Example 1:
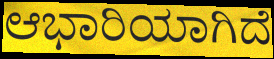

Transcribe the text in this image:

ಆಭಾರಿಯಾಗಿದೆ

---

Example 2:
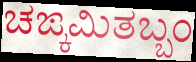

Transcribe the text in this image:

ಚಙ್ಕಮಿತಬ್ಬಂ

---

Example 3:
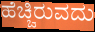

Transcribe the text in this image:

ಹೆಚ್ಚಿರುವದು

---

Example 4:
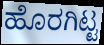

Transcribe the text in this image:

ಹೊರಗಿಟ್ಟ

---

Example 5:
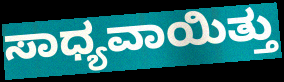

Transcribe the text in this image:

ಸಾಧ್ಯವಾಯಿತ್ತು